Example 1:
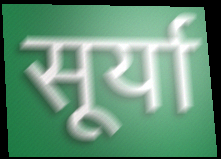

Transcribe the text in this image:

सूर्या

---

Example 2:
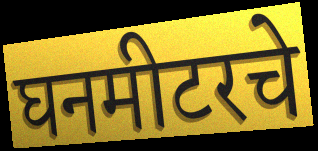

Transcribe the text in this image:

घनमीटरचे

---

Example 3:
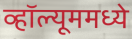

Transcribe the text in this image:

व्हॉल्यूममध्ये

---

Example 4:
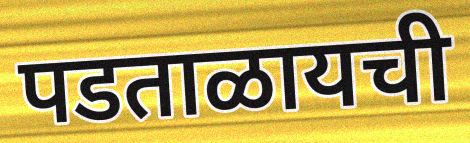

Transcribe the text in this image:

पडताळायची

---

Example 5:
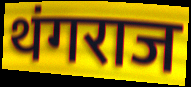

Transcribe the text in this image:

थंगराज